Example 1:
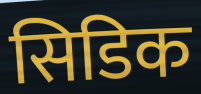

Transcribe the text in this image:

सिडिक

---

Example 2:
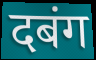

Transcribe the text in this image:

दबंग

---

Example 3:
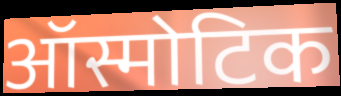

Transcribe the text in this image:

ऑस्मोटिक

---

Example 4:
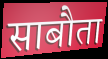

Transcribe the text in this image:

साबौता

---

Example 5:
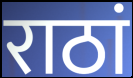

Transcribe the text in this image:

राठां